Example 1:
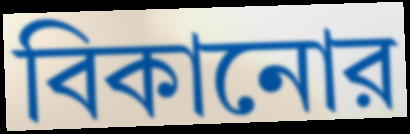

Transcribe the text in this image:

বিকানোর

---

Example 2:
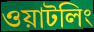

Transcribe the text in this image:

ওয়াটলিং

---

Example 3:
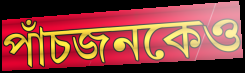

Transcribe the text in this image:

পাঁচজনকেও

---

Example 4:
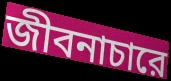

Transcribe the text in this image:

জীবনাচারে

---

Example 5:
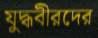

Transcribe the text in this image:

যুদ্ধবীরদের